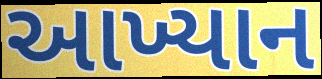
આખ્યાન